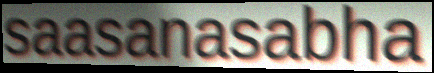
saasanasabha